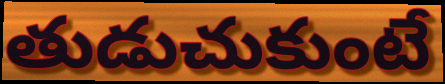
తుడుచుకుంటే